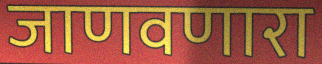
जाणवणारा